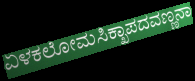
ಏಳಕಲೋಮಸಿಕ್ಖಾಪದವಣ್ಣನಾ